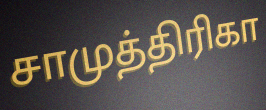
சாமுத்திரிகா